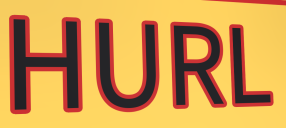
HURL